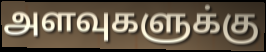
அளவுகளுக்கு